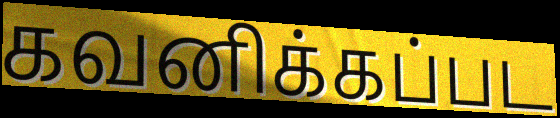
கவனிக்கப்பட